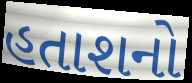
હતાશનો